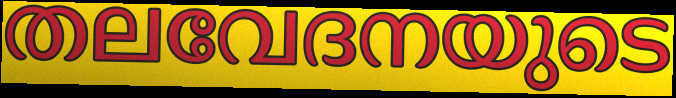
തലവേദനയുടെ